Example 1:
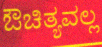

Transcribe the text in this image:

ಔಚಿತ್ಯವಲ್ಲ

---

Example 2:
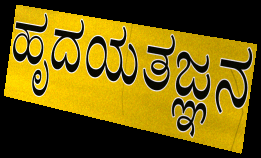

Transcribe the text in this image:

ಹೃದಯತಜ್ಞನ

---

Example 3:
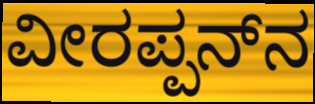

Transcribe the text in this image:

ವೀರಪ್ಪನ್‍ನ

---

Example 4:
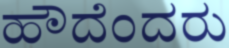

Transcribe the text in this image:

ಹೌದೆಂದರು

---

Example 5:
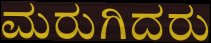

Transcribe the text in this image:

ಮರುಗಿದರು